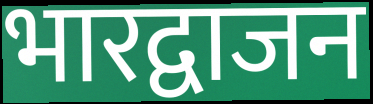
भारद्वाजन